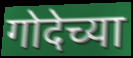
गोदेच्या